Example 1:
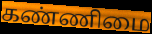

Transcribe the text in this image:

கண்ணிமை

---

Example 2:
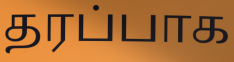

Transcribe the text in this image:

தரப்பாக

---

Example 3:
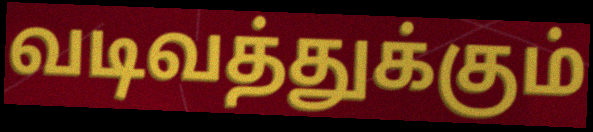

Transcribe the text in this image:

வடிவத்துக்கும்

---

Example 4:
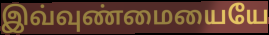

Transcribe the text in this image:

இவ்வுண்மையையே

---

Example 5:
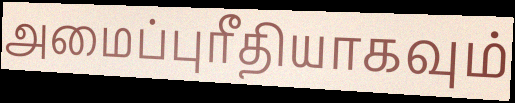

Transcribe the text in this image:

அமைப்புரீதியாகவும்